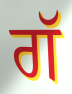
ਗੱ